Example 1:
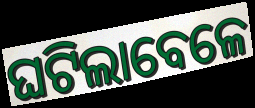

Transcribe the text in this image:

ଘଟିଲାବେଳେ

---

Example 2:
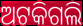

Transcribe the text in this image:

ଅଟକିଗଲି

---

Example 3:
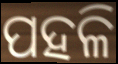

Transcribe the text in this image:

ପହଳି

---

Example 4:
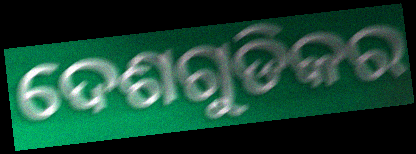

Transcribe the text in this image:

ଦେଶଗୁଡିକର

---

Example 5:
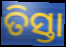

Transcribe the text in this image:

ତିସ୍ତା